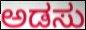
ಅಡಸು